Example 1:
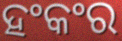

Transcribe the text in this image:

ହଂକଂର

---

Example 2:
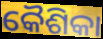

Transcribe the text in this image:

କୈଶିକା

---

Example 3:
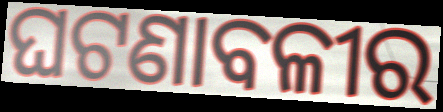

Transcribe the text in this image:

ଘଟଣାବଳୀର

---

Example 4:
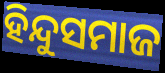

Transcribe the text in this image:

ହିନ୍ଦୁସମାଜ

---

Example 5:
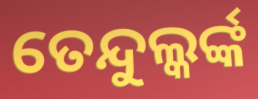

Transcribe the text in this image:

ତେନ୍ଦୁଲ୍କର୍ଙ୍କ